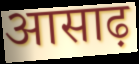
आसाढ़